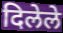
दिलेले